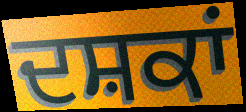
ਦਸ਼ਕਾਂ